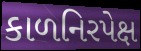
કાળનિરપેક્ષ